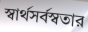
স্বার্থসর্বস্বতার